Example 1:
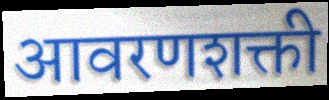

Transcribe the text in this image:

आवरणशक्ती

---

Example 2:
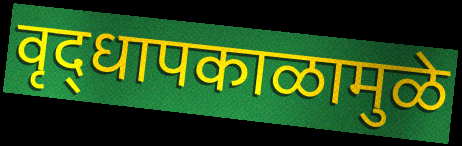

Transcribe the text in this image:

वृद्धापकाळामुळे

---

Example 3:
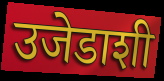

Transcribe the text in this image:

उजेडाशी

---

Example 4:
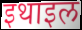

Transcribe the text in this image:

इथाइल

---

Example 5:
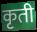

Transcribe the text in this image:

कृती